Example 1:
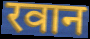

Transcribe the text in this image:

रवान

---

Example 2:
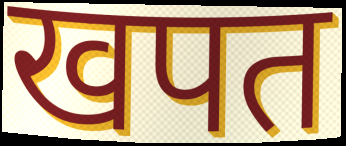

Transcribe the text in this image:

खपत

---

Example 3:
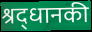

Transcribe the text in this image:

श्रद्धानकी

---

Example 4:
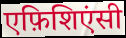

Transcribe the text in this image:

एफ़िशिएंसी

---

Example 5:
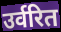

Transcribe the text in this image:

उर्वरित